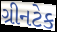
ગ્રીનટેક